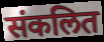
संकलित